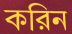
করিন